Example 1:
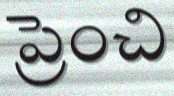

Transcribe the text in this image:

ప్రెంచి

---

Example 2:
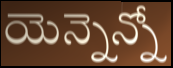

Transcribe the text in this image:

యెన్నెన్నో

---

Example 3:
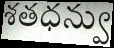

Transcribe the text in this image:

శతధన్వు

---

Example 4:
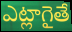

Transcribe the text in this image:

ఎట్లాగైతే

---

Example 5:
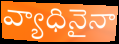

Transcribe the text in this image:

వ్యాధినైనా